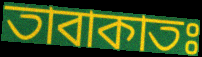
তাবাকাতঃ